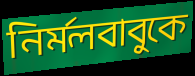
নির্মলবাবুকে